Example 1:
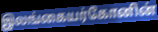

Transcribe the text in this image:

இலங்கையர்கோனின்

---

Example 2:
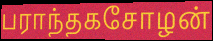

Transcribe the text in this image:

பராந்தகசோழன்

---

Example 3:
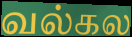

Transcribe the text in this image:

வல்கல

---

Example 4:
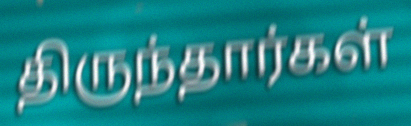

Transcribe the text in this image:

திருந்தார்கள்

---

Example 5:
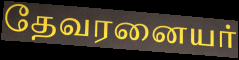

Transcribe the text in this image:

தேவரனையர்